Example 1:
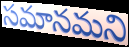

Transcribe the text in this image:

సమానమని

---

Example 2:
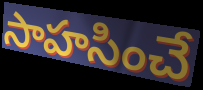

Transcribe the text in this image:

సాహసించే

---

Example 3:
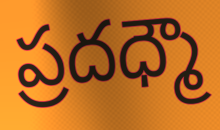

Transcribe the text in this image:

ప్రదధ్మౌ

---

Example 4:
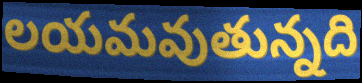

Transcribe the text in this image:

లయమవుతున్నది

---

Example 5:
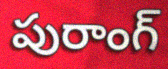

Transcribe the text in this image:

పురాంగ్